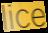
lice